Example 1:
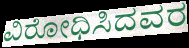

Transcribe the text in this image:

ವಿರೋಧಿಸಿದವರ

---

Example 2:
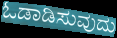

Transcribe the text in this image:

ಓಡಾಡಿಸುವುದು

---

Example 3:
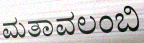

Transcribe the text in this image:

ಮತಾವಲಂಬಿ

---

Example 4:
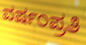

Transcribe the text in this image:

ವರ್ಷಂಪ್ರತಿ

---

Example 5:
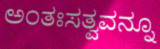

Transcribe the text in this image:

ಅಂತಃಸತ್ವವನ್ನೂ